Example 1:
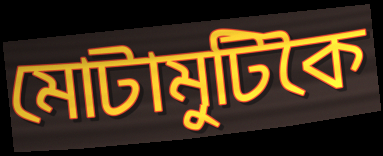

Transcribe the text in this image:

মোটামুটিকৈ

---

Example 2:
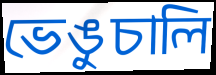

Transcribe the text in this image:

ভেঙুচালি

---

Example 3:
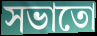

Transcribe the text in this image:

সভাতো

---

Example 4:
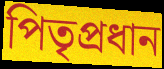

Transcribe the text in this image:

পিতৃপ্ৰধান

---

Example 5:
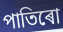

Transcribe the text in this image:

পাতিৰো